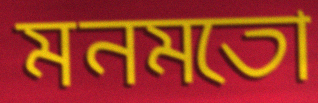
মনমতো